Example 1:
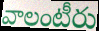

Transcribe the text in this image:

వాలంటీరు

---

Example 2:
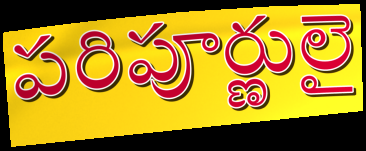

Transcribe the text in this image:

పరిపూర్ణులై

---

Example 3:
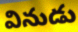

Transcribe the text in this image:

వినుడు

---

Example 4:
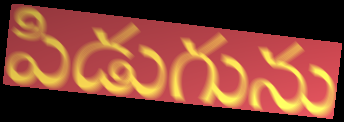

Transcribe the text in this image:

పిడుగును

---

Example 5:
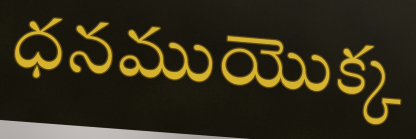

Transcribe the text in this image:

ధనముయొక్క